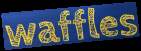
waffles